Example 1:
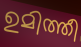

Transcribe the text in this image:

ഉമിത്തീ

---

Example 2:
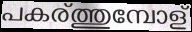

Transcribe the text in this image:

പകര്ത്തുമ്പോള്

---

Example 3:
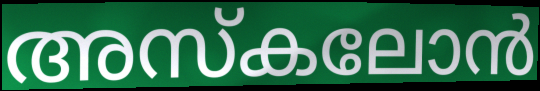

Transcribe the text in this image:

അസ്കലോൻ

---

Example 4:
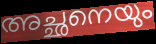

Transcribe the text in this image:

അച്ഛനെയും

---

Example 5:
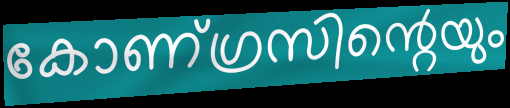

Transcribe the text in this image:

കോണ്ഗ്രസിന്റെയും